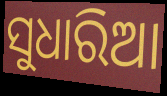
ସୁଧାରିଆ